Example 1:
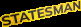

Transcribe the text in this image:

STATESMAN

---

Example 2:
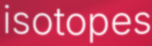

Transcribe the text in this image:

isotopes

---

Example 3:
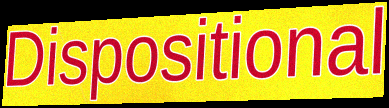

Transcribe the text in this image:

Dispositional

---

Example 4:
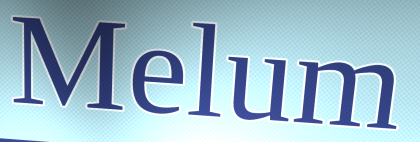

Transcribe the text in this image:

Melum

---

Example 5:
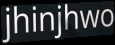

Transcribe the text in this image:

jhinjhwo